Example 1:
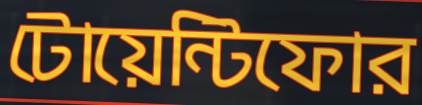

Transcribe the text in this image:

টোয়েন্টিফোর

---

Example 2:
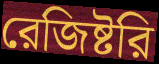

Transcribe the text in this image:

রেজিষ্টরি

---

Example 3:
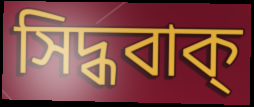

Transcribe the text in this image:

সিদ্ধবাক্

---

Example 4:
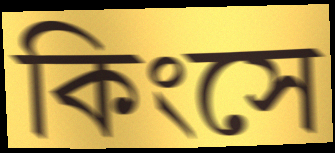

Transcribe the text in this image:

কিংসে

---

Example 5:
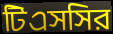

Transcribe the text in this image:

টিএসসির